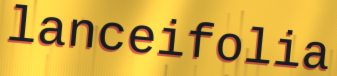
lanceifolia